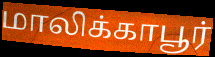
மாலிக்காபூர்